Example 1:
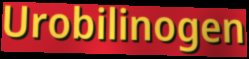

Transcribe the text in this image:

Urobilinogen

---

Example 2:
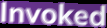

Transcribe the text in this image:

Invoked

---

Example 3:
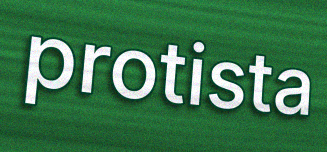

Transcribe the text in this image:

protista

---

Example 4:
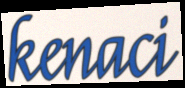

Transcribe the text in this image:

kenaci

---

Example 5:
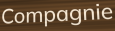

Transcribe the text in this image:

Compagnie